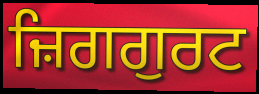
ਜ਼ਿਗਗੁਰਟ